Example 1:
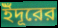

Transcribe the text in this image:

ইঁদূরের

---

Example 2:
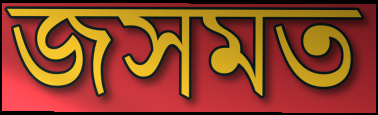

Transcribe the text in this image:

জসমত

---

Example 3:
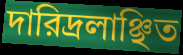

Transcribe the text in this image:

দারিদ্রলাঞ্ছিত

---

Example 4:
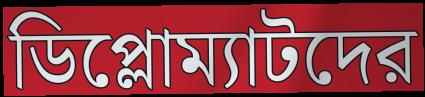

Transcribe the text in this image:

ডিপ্লোম্যাটদের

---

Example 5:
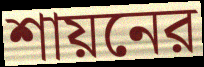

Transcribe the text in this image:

শায়নের